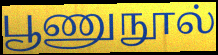
பூணுநூல்